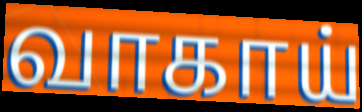
வாகாய்